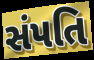
સંપતિ